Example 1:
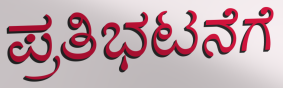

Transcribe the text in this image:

ಪ್ರತಿಭಟನೆಗೆ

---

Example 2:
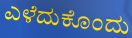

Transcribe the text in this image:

ಎಳೆದುಕೊಂದು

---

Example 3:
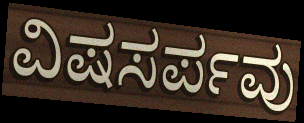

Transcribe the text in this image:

ವಿಷಸರ್ಪವು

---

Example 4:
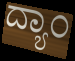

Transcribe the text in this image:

ದ್ಯಾಂ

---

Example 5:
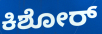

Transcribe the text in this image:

ಕಿಶೋರ್